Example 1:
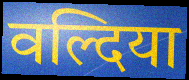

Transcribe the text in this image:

वल्दिया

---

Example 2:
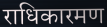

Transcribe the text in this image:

राधिकारमण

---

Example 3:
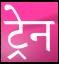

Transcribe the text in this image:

ट्रेन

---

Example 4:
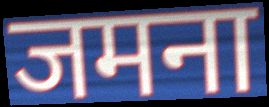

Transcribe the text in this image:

जमना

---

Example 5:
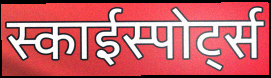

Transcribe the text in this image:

स्काईस्पोर्ट्स